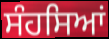
ਸੰਹਸਿਆਂ